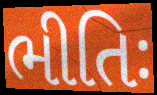
ભીતિઃ